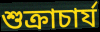
শুক্রাচার্য